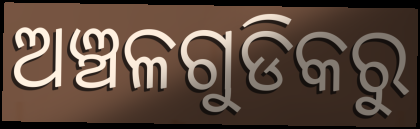
ଅଞ୍ଚଳଗୁଡିକରୁ